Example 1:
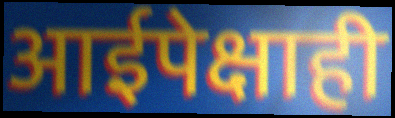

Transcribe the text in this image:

आईपेक्षाही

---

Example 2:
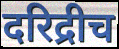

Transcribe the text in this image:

दरिद्रीच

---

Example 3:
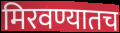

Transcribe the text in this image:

मिरवण्यातच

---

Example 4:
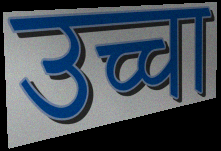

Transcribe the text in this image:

उच्चा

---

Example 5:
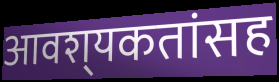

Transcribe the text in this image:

आवश्यकतांसह